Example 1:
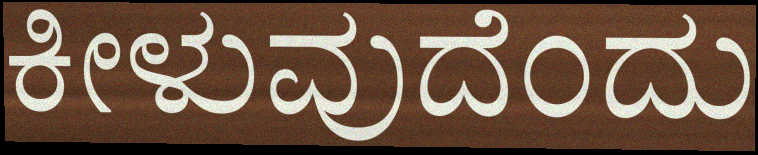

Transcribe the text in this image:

ಕೀಳುವುದೆಂದು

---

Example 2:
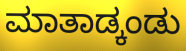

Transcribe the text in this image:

ಮಾತಾಡ್ಕಂಡು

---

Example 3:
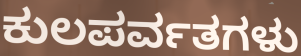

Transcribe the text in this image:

ಕುಲಪರ್ವತಗಳು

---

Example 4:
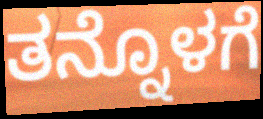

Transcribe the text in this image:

ತನ್ನೊಳಗೆ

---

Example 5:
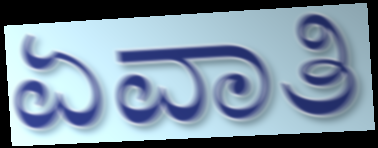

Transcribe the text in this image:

ಏವಾತಿ